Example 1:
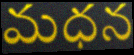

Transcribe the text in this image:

మధన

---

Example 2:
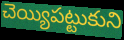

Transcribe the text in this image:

చెయ్యిపట్టుకుని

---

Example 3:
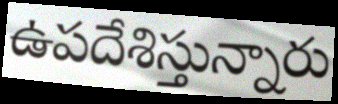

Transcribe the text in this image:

ఉపదేశిస్తున్నారు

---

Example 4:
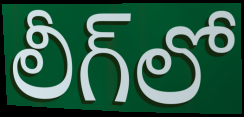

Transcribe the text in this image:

లీగ్‌లో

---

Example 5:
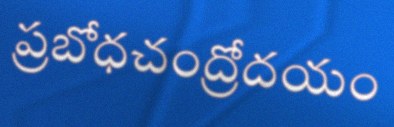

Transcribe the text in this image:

ప్రబోధచంద్రోదయం